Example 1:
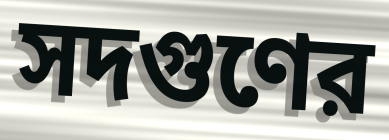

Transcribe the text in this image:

সদগুণের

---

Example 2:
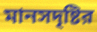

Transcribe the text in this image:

মানসদৃষ্টির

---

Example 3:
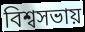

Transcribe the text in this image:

বিশ্বসভায়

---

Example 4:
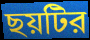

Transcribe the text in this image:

ছয়টির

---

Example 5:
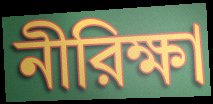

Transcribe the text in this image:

নীরিক্ষা